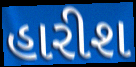
હારીશ